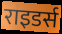
राइडर्स